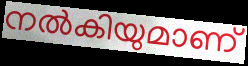
നൽകിയുമാണ്